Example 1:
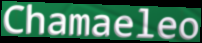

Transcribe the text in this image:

Chamaeleo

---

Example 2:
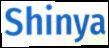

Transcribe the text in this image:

Shinya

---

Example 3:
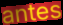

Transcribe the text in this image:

antes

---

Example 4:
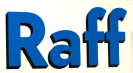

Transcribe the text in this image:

Raff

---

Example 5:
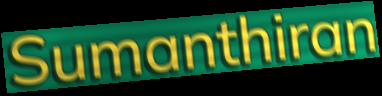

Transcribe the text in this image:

Sumanthiran